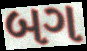
બગ